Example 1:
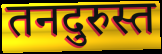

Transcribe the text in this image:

तनदुरुस्त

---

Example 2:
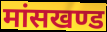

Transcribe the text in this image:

मांसखण्ड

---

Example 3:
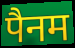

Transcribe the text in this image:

पैनम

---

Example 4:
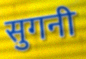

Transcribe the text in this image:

सुगनी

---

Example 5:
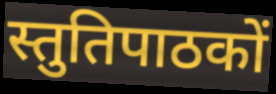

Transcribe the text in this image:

स्तुतिपाठकों